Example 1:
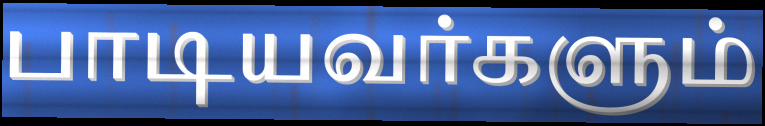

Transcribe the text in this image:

பாடியவர்களும்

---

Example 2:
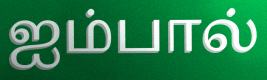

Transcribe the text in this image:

ஐம்பால்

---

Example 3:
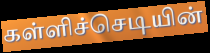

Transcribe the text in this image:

கள்ளிச்செடியின்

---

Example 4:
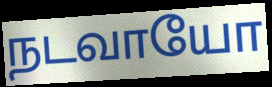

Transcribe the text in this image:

நடவாயோ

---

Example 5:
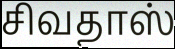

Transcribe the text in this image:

சிவதாஸ்